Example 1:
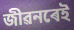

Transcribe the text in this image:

জীৱনৰেই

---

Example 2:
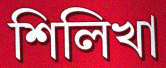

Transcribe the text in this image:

শিলিখা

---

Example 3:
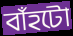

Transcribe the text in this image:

বাঁহটো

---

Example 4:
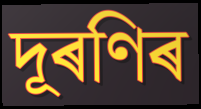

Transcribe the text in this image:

দূৰণিৰ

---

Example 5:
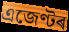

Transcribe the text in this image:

এজেণ্টৰ